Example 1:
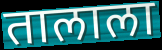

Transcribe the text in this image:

तालाला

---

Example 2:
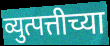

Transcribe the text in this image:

व्युत्पत्तीच्या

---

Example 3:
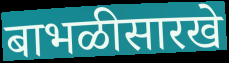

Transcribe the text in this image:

बाभळीसारखे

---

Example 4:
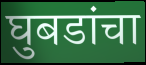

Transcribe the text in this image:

घुबडांचा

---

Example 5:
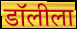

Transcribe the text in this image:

डॉलीला